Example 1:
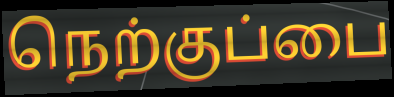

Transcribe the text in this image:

நெற்குப்பை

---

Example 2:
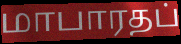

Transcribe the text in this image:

மாபாரதப்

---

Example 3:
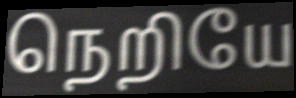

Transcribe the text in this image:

நெறியே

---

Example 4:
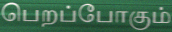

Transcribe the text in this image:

பெறப்போகும்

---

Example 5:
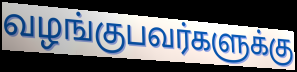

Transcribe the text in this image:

வழங்குபவர்களுக்கு